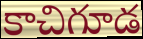
కాచిగూడ